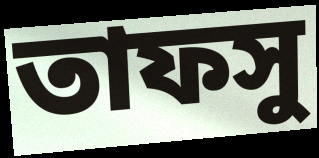
তাফসু